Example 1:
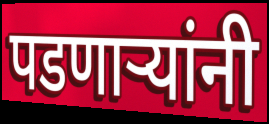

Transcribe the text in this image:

पडणाऱ्यांनी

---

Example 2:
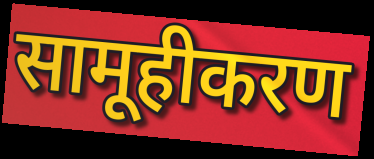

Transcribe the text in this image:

सामूहीकरण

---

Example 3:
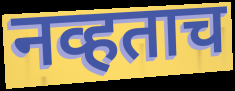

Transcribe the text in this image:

नव्हताच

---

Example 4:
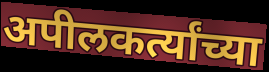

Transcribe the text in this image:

अपीलकर्त्यांच्या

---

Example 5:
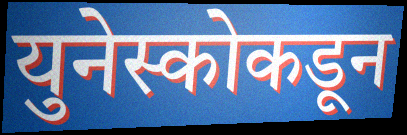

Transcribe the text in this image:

युनेस्कोकडून